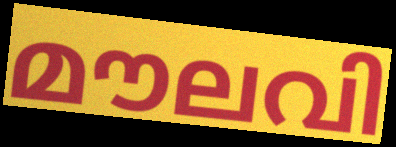
മൗലവി